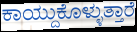
ಕಾಯ್ದುಕೊಳ್ಳುತ್ತಾರೆ